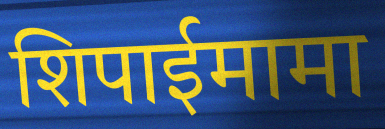
शिपाईमामा